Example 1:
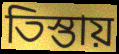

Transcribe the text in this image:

তিস্তায়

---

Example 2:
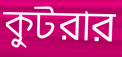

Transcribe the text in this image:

কুটরার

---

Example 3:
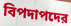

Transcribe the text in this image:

বিপদাপদের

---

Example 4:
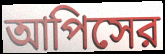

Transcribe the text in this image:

আপিসের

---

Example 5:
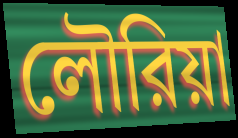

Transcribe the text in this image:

লৌরিয়া